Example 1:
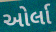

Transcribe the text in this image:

ઓર્લા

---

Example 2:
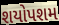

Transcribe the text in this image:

શયોપશમ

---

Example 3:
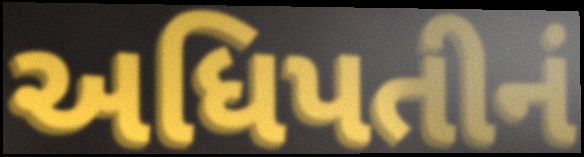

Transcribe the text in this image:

અધિપતીનં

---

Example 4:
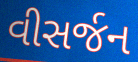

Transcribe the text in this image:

વીસર્જન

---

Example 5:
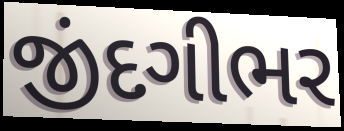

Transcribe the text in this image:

જીંદગીભર